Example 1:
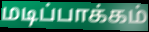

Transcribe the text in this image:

மடிப்பாக்கம்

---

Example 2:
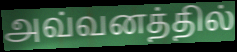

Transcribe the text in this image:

அவ்வனத்தில்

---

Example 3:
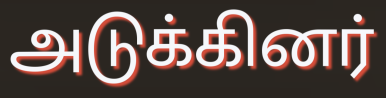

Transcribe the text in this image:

அடுக்கினர்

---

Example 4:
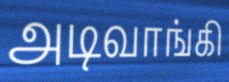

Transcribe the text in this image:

அடிவாங்கி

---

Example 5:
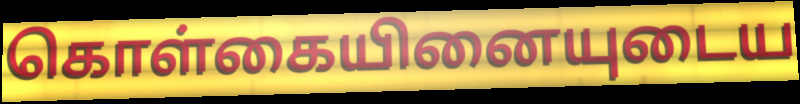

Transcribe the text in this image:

கொள்கையினையுடைய